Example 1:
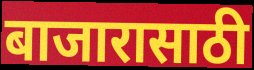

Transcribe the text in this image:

बाजारासाठी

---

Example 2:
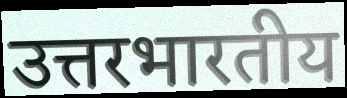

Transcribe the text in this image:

उत्तरभारतीय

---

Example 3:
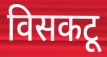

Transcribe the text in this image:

विसकटू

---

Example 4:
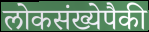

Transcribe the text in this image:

लोकसंख्येपैकी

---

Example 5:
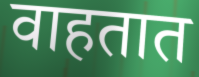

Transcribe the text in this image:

वाहतात